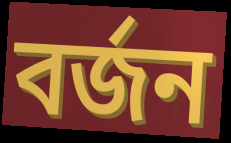
বর্জন